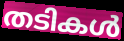
തടികൾ